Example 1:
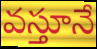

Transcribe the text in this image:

వస్తూనే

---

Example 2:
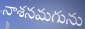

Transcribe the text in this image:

నాశనమగును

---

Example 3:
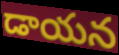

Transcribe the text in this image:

డాయన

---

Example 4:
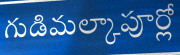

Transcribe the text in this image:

గుడిమల్కాపూర్లో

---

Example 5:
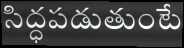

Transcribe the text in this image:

సిద్ధపడుతుంటే